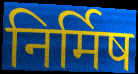
निर्मिष